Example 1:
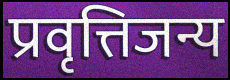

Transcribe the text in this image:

प्रवृत्तिजन्य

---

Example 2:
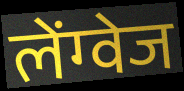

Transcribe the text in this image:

लेंग्वेज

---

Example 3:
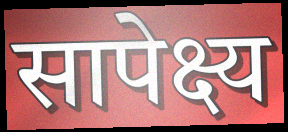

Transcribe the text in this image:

सापेक्ष्य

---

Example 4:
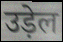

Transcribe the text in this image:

उड़ेल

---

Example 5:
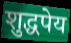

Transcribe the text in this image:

शुद्धपेय